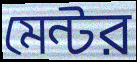
মেন্টর